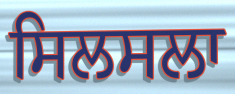
ਸਿਲਸਲਾ